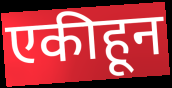
एकीहून